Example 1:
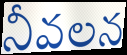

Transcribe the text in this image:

నీవలన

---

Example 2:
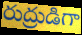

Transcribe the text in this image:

రుద్రుడిగా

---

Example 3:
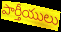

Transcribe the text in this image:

పార్తీయులు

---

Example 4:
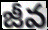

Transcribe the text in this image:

జీవ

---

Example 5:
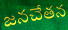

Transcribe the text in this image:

జనచేతన